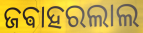
ଜଵାହରଲାଲ